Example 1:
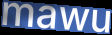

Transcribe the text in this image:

mawu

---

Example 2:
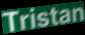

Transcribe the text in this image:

Tristan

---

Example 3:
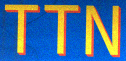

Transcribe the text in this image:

TTN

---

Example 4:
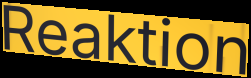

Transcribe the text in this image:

Reaktion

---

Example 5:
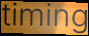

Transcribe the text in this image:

timing